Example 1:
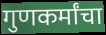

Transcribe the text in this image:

गुणकर्मांचा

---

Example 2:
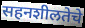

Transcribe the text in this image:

सहनशीलतेचे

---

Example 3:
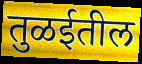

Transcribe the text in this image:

तुळईतील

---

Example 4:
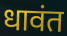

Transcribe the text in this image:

धावंत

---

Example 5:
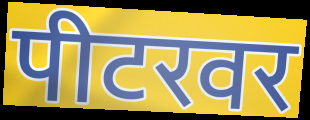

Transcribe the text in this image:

पीटरवर